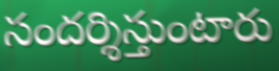
సందర్శిస్తుంటారు